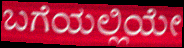
ಬಗೆಯಲ್ಲಿಯೇ